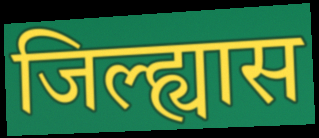
जिल्ह्यास